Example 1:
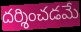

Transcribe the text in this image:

దర్శించడమే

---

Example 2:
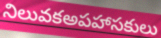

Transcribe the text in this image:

నిలువకఅపహాసకులు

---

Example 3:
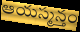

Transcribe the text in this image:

ఆయస్మన్తం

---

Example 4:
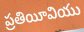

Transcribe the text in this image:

ప్రతియీవియు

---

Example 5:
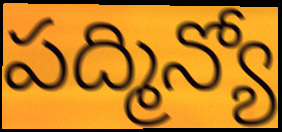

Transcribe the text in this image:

పద్మిన్యో